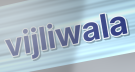
vijliwala